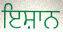
ਇਸ਼ਾਨ